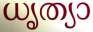
ധൃത്യാ